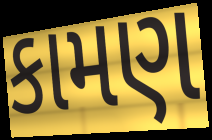
કામણ